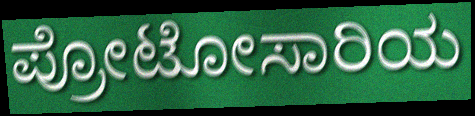
ಪ್ರೋಟೋಸಾರಿಯ